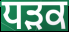
ਧਡ਼ਕ